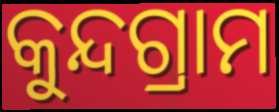
କୁନ୍ଦଗ୍ରାମ